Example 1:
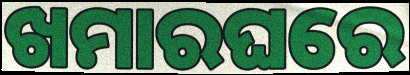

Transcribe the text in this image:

ଖମାରଘରେ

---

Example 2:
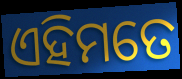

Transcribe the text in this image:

ଏହିମତେ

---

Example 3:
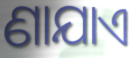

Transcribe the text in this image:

ଣାଯାଏ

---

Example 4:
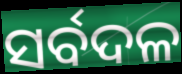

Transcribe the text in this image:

ସର୍ବଦଳ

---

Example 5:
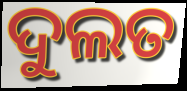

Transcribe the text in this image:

ଦୁଲତ